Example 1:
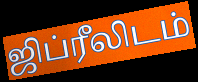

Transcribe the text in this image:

ஜிப்ரீலிடம்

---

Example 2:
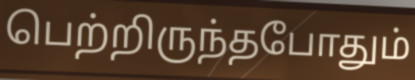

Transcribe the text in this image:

பெற்றிருந்தபோதும்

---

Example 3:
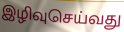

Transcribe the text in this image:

இழிவுசெய்வது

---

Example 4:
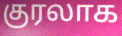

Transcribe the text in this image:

குரலாக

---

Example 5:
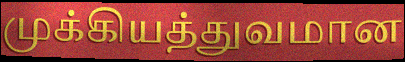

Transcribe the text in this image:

முக்கியத்துவமான